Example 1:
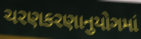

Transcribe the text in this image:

ચરણકરણાનુયોગમાં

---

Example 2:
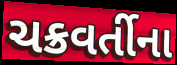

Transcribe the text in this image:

ચક્રવર્તીના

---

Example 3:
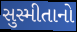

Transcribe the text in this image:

સુસ્મીતાનો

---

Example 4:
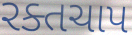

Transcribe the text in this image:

રક્તચાપ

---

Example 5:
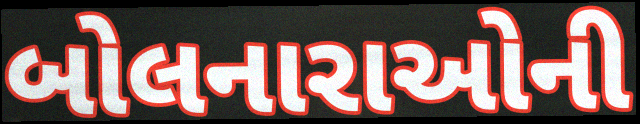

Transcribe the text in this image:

બોલનારાઓની